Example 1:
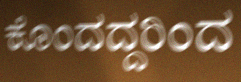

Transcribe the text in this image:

ಕೊಂದದ್ದರಿಂದ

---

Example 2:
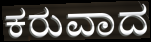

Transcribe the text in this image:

ಕರುವಾದ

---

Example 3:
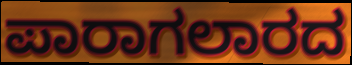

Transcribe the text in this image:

ಪಾರಾಗಲಾರದ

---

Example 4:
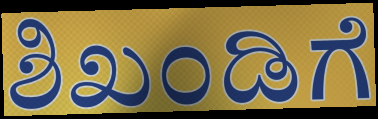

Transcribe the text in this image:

ಶಿಖಂಡಿಗೆ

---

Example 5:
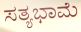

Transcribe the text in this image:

ಸತ್ಯಭಾಮೆ